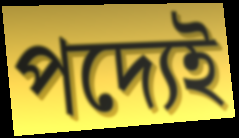
পদ্যেই